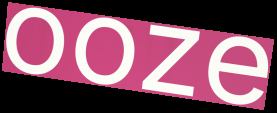
ooze